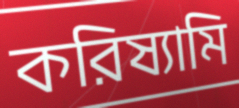
করিষ্যামি